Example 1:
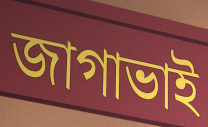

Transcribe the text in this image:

জাগাভাই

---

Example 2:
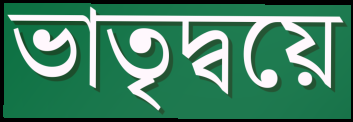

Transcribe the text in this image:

ভাতৃদ্বয়ে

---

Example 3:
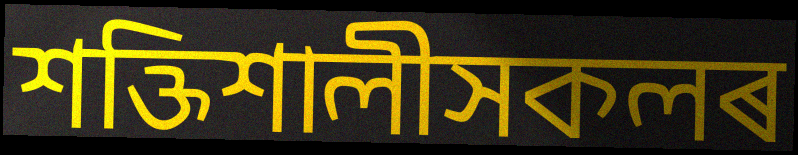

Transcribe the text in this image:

শক্তিশালীসকলৰ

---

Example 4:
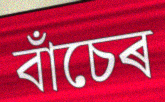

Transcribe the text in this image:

বাঁচেৰ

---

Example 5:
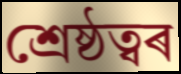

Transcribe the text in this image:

শ্ৰেষ্ঠত্বৰ